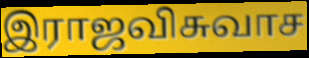
இராஜவிசுவாச